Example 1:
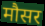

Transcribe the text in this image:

मौसर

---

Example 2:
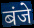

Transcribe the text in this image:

बंजे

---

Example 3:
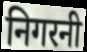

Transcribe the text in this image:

निगरनी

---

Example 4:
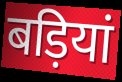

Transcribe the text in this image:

बड़ियां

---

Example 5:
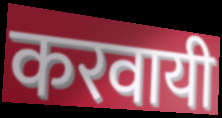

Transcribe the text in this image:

करवायी